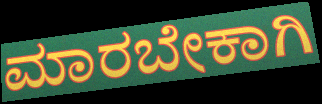
ಮಾರಬೇಕಾಗಿ